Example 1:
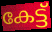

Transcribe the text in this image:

കേട്ട്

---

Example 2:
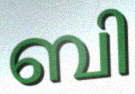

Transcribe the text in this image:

ബി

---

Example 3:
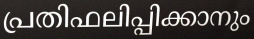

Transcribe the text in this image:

പ്രതിഫലിപ്പിക്കാനും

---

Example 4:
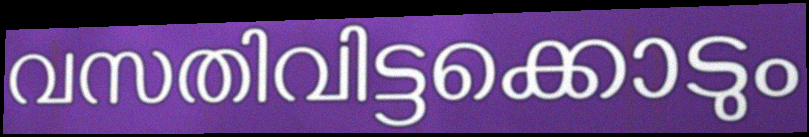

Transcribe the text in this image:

വസതിവിട്ടക്കൊടും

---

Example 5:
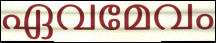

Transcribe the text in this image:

ഏവമേവം